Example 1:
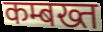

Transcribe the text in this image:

कम्बख्त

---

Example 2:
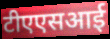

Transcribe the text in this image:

टीएएसआई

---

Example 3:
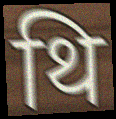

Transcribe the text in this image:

थि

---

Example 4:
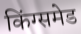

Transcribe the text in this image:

किंग्समेड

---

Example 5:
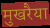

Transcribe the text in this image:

मुखरैया